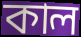
কাল